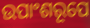
ଉପାଂଶରୂପେ